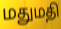
மதுமதி